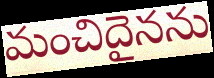
మంచిదైనను